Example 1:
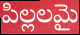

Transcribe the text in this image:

పిల్లలమై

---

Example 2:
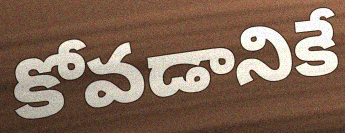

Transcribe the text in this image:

కోవడానికే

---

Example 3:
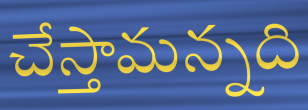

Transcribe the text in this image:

చేస్తామన్నది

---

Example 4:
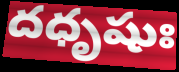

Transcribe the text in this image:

దధృషుః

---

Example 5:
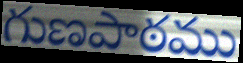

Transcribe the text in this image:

గుణపాఠము